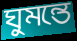
ঘুমন্তে